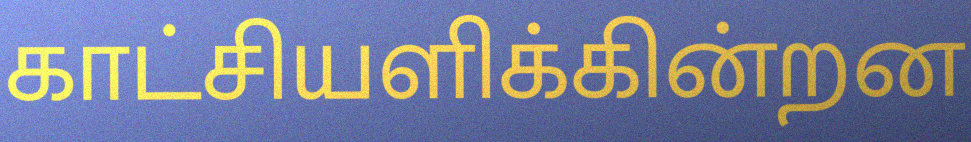
காட்சியளிக்கின்றன